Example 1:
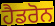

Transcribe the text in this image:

ਹੈਡਰੋਨ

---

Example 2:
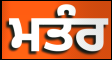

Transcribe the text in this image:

ਮਤੰਰ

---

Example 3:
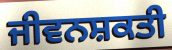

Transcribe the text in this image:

ਜੀਵਨਸ਼ਕਤੀ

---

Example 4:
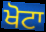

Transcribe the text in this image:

ਖੋਟਾ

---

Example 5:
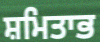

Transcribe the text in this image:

ਸ਼ਮਿਤਾਭ